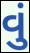
વું